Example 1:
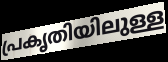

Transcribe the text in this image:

പ്രകൃതിയിലുള്ള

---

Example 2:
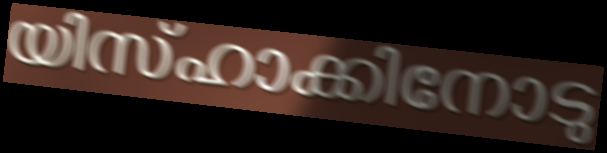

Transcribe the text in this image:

യിസ്ഹാക്കിനോടു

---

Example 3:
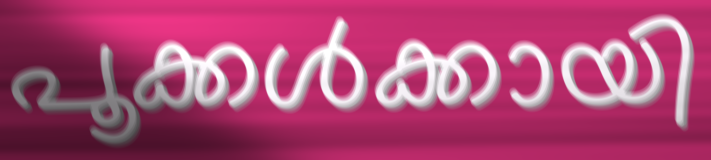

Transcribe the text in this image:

പൂക്കൾക്കായി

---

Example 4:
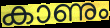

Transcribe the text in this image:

കാണും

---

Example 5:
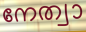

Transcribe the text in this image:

നേത്വാ